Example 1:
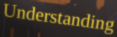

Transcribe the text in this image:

Understanding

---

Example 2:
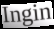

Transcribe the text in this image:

Ingin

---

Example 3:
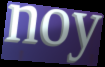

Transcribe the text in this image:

noy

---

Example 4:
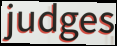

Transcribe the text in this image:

judges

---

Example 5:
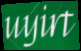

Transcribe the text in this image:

uyirt